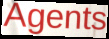
Agents